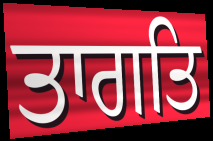
ਤਾਗਤਿ